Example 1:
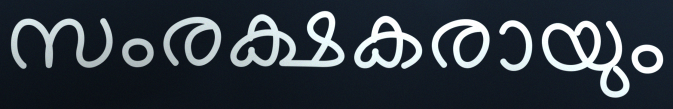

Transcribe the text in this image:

സംരക്ഷകരായും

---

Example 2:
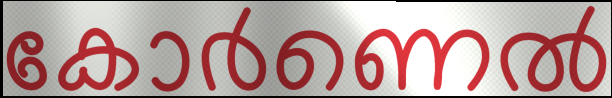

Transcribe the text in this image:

കോർണെൽ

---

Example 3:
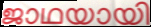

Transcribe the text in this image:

ജാഥയായി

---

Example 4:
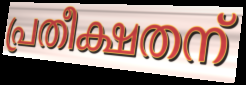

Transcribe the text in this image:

പ്രതീക്ഷതന്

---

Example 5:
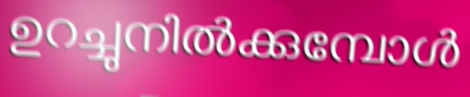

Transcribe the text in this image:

ഉറച്ചുനിൽക്കുമ്പോൾ